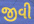
જીવી